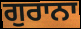
ਗੁਰਾਨਾ